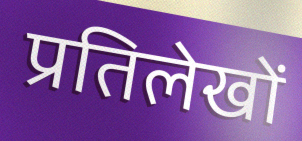
प्रतिलेखों